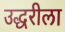
उद्धरीला